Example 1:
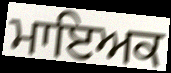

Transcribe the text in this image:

ਮਾਇਅਕ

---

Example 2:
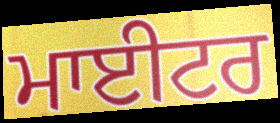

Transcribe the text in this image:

ਮਾਈਟਰ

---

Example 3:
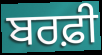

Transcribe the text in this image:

ਬਰਫ਼ੀ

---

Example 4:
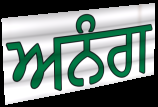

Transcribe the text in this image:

ਅਨੰਗ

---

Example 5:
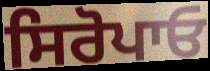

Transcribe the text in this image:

ਸਿਰੋਪਾਓ